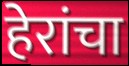
हेरांचा